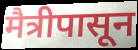
मैत्रीपासून